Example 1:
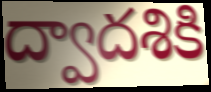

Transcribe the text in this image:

ద్వాదశికి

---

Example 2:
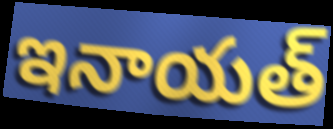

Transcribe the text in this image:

ఇనాయత్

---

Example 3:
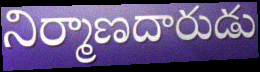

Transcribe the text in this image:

నిర్మాణదారుడు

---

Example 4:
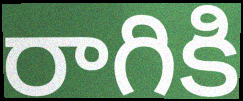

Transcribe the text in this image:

రాగికి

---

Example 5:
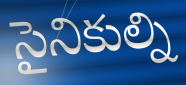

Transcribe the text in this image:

సైనికుల్ని